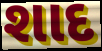
શાદ